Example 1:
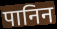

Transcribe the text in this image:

पानिन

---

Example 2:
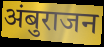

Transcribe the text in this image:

अंबुराजन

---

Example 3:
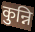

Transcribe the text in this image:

कुन्नि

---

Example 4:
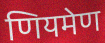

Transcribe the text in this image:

णियमेण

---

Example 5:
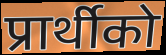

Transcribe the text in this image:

प्रार्थीको